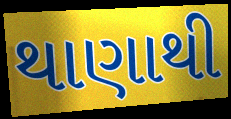
થાણાથી